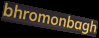
bhromonbagh